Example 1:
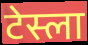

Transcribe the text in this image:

टेस्ला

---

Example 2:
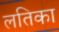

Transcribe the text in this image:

लतिका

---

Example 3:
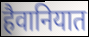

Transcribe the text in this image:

हैवानियात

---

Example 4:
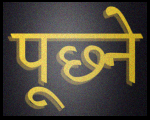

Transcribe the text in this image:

पूछ्ने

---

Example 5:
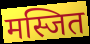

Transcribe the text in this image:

मस्जित